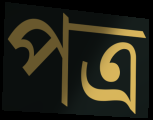
পত্ৰ